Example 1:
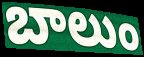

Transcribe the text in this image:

బాలుం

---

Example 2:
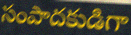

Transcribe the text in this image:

సంపాదకుడిగా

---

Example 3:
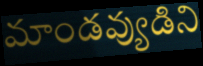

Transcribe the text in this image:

మాండవ్యుడిని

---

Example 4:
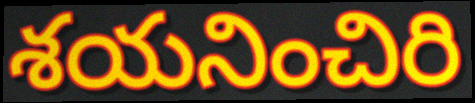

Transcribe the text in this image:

శయనించిరి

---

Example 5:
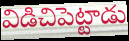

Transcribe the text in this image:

విడిచిపెట్టాడు